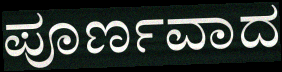
ಪೂರ್ಣವಾದ